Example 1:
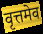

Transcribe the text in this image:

वृत्तमेव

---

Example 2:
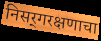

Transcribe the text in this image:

निसर्गरक्षणाचा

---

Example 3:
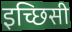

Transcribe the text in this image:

इच्छिसी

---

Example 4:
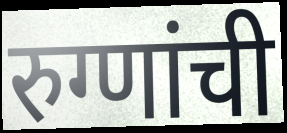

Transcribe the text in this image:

रुग्णांची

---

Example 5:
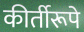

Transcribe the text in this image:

कीर्तीरूपे